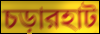
চড়ারহাট